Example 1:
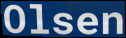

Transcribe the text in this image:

Olsen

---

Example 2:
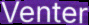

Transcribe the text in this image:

Venter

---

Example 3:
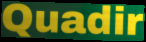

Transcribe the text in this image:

Quadir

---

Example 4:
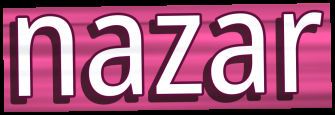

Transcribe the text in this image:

nazar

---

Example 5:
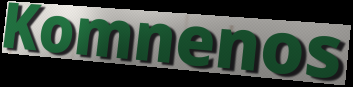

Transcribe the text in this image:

Komnenos